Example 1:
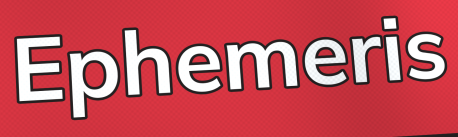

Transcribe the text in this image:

Ephemeris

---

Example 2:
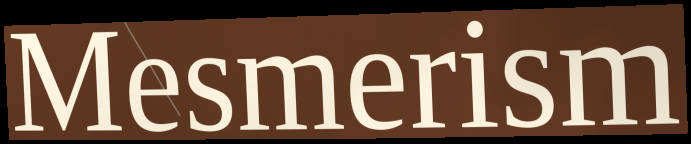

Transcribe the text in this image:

Mesmerism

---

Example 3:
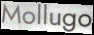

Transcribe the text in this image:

Mollugo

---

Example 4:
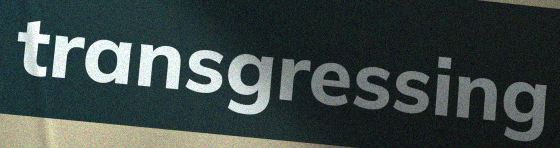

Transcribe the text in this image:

transgressing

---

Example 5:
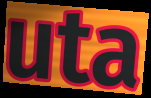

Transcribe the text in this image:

uta